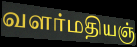
வளர்மதியஞ்